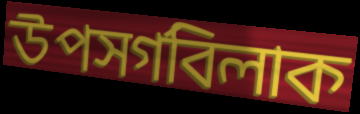
উপসৰ্গবিলাক